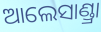
ଆଲେସାଣ୍ଡ୍ରା